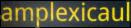
amplexicaul